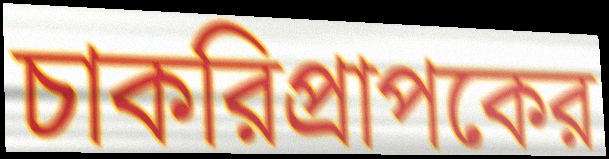
চাকরিপ্রাপকের